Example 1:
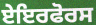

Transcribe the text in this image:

ਏਇਰਫੋਰਸ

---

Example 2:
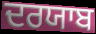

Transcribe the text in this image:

ਦਰਯਾਬ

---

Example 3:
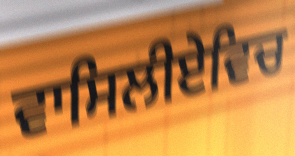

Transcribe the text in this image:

ਵਾਸਿਲੀਏਵਿਚ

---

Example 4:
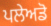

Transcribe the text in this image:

ਪਲੇਅਡੋ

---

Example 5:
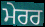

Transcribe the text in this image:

ਮੇਰਰ